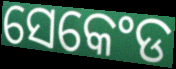
ସେକେଂଡ